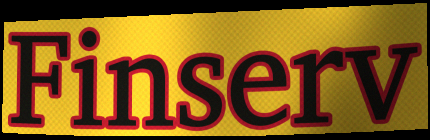
Finserv